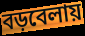
বড়বেলায়